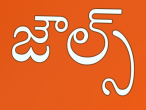
జౌల్స్